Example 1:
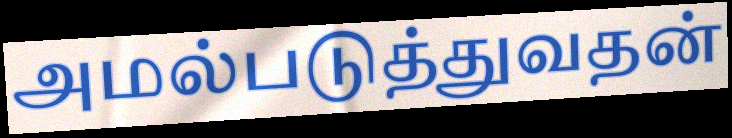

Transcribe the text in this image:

அமல்படுத்துவதன்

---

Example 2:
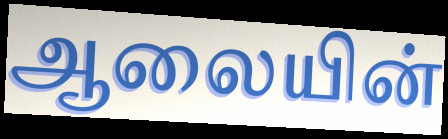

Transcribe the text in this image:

ஆலையின்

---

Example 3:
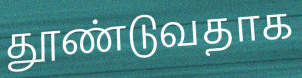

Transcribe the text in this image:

தூண்டுவதாக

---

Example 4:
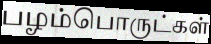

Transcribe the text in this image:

பழம்பொருட்கள்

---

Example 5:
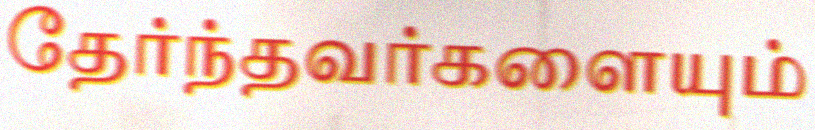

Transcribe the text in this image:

தேர்ந்தவர்களையும்